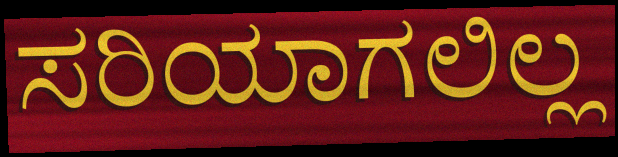
ಸರಿಯಾಗಲಿಲ್ಲ